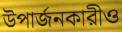
উপার্জনকারীও